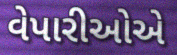
વેપારીઓએ